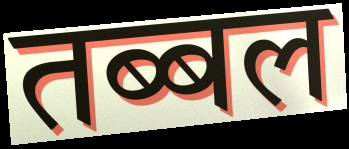
तब्बल